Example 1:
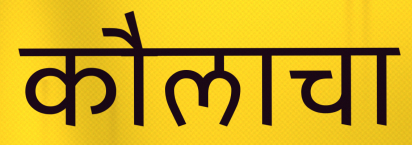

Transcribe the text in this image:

कौलाचा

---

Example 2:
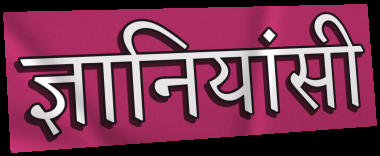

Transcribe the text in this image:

ज्ञानियांसी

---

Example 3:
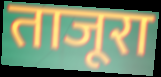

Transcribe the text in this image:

ताजूरा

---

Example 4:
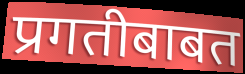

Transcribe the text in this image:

प्रगतीबाबत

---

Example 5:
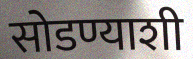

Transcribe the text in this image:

सोडण्याशी